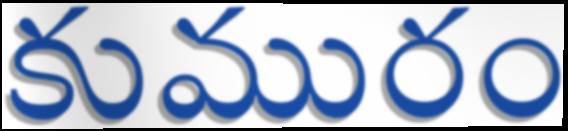
కుమురం